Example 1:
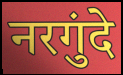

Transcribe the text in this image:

नरगुंदे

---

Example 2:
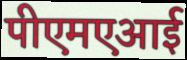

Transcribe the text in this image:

पीएमएआई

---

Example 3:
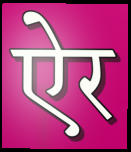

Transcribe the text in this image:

ऐर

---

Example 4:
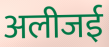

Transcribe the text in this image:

अलीजई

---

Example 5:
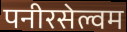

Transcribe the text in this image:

पनीरसेल्वम